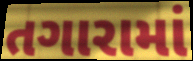
તગારામાં